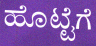
ಹೊಟ್ಟೆಗೆ